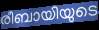
രീബായിയുടെ